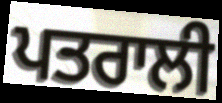
ਪਤਰਾਲੀ